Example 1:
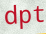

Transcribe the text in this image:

dpt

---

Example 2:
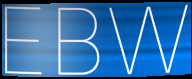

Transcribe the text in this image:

EBW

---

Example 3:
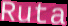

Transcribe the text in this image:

Ruta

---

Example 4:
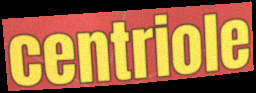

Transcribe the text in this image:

centriole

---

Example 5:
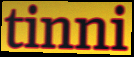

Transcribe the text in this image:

tinni